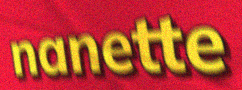
nanette